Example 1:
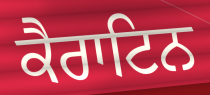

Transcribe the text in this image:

ਕੈਰਾਟਿਨ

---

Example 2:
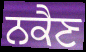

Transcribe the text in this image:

ਨਕੈਣ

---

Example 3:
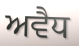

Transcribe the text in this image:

ਅਵੈਧ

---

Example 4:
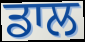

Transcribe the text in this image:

ਡਾਲ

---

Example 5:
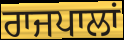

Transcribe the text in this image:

ਰਾਜਪਾਲਾਂ